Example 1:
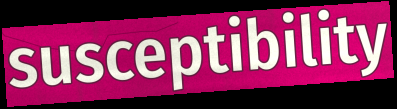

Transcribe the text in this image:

susceptibility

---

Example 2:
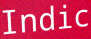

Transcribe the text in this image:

Indic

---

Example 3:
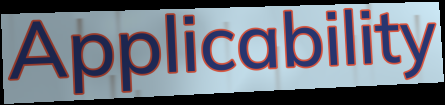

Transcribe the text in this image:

Applicability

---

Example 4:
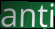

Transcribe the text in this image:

anti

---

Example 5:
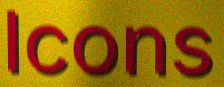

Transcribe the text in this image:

Icons